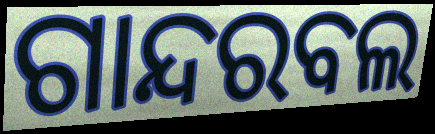
ଗାନ୍ଦରବଲ